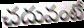
చదువంటే